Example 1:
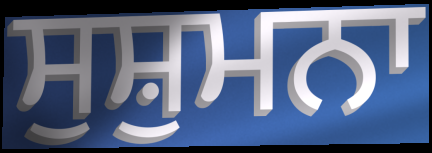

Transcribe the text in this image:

ਸੁਸ਼ੁਮਨਾ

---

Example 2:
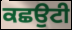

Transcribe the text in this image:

ਕਛਉਟੀ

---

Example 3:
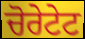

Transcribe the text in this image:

ਚੋਰੇਟੇਟ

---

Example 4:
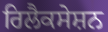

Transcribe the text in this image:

ਰਿਲੈਕਸੇਸ਼ਨ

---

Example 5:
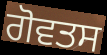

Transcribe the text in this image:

ਗੋਵਤਸ